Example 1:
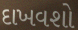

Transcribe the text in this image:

દાખવશો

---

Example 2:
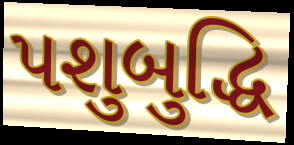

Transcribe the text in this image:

પશુબુદ્ધિ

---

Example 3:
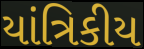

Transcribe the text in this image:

યાંત્રિકીય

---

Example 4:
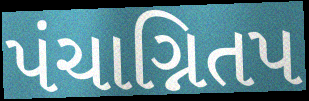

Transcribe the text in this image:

પંચાગ્નિતપ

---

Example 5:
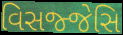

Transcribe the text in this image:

વિસજ્જેસિ